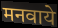
मनवाये